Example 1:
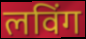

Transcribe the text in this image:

लविंग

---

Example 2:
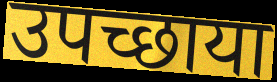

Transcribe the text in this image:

उपच्छाया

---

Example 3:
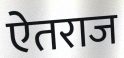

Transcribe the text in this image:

ऐतराज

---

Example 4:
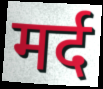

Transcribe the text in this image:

मर्द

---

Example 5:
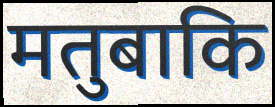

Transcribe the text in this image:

मतुबाकि